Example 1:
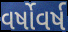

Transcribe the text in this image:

વર્ષોવર્ષ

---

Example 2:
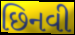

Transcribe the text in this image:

છિનવી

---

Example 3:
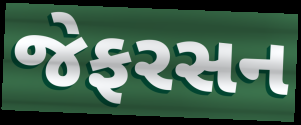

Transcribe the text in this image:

જેફરસન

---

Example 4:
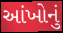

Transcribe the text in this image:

આંખોનું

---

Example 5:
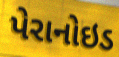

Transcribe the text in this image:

પેરાનોઇડ